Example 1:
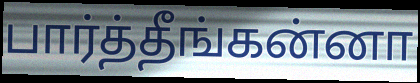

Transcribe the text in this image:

பார்த்தீங்கன்னா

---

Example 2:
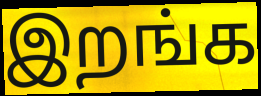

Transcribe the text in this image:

இறங்க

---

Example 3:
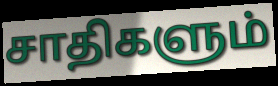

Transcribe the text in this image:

சாதிகளும்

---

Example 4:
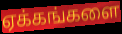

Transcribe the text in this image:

ஏக்கங்களை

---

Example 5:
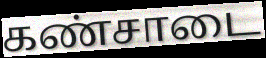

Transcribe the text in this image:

கண்சாடை